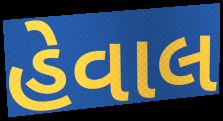
હેવાલ